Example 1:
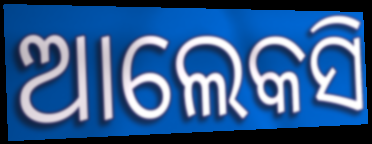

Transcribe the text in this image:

ଆଲେକସି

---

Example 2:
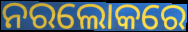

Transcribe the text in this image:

ନରଲୋକରେ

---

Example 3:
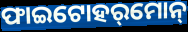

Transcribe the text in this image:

ଫାଇଟୋହର୍‌ମୋନ୍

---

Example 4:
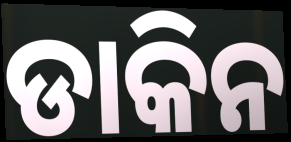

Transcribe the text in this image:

ଡାକିନ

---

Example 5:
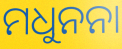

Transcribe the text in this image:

ମଧୁନନା